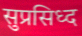
सुप्रसिध्द